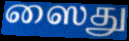
ஸைது